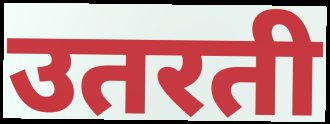
उतरती